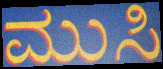
ಮುಸಿ